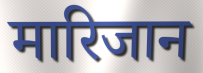
मारिजान